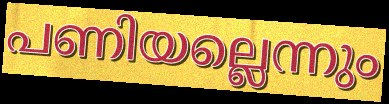
പണിയല്ലെന്നും